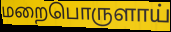
மறைபொருளாய்